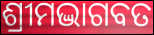
ଶ୍ରୀମଦ୍ଭାଗବତ